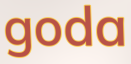
goda